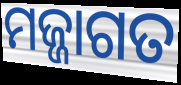
ମଜ୍ଜାଗତ